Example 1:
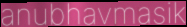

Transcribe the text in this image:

anubhavmasik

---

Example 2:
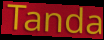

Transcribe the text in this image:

Tanda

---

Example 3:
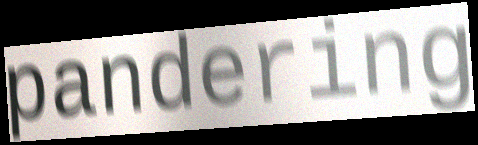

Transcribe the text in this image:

pandering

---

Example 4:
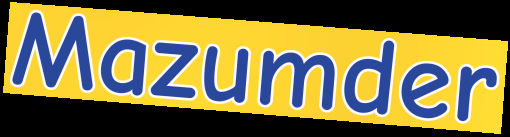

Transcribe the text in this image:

Mazumder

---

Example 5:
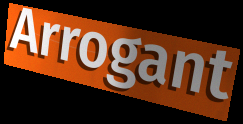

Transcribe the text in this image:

Arrogant